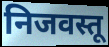
निजवस्तू